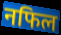
नफिल